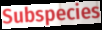
Subspecies